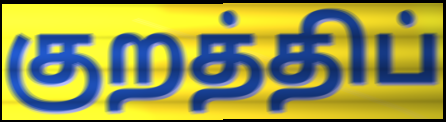
குறத்திப்